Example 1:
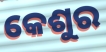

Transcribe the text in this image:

କେଶୁର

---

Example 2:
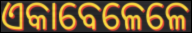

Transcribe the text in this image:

ଏକାବେଳେଳେ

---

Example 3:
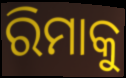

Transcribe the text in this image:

ରିମାକୁ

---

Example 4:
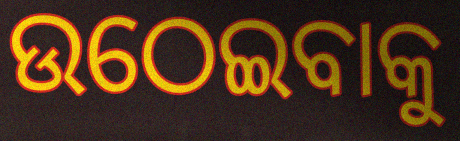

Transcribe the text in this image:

ଉଠେଇବାକୁ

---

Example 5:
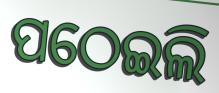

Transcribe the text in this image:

ପଠେଇଲି